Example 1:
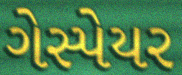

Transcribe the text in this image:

ગેસ્પેયર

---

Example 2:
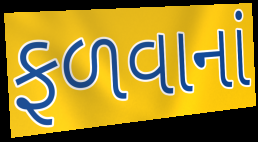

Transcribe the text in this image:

ફળવાનાં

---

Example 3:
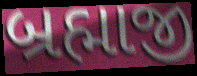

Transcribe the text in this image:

બ્રહ્માજી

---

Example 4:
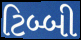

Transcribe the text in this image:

ટિબ્બી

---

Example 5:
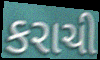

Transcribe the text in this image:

કરાચી